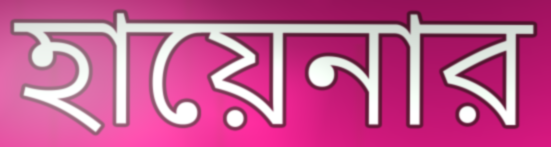
হায়েনার